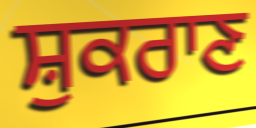
ਸ਼ੁਕਰਾਣ